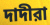
দাদীরা